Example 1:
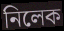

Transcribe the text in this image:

নিলেক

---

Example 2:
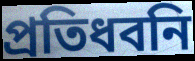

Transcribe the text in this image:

প্রতিধবনি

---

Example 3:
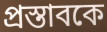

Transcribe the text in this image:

প্রস্তাবকে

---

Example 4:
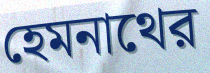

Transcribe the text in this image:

হেমনাথের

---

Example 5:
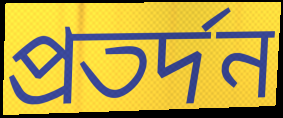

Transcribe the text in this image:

প্রতর্দন